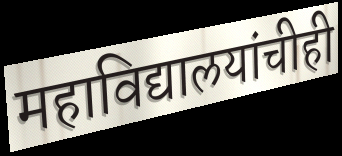
महाविद्यालयांचीही